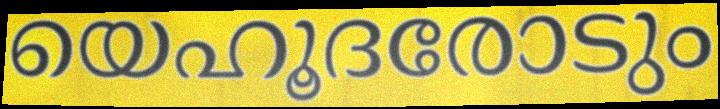
യെഹൂദരോടും